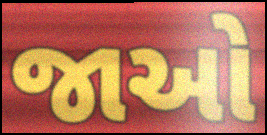
જાઓ